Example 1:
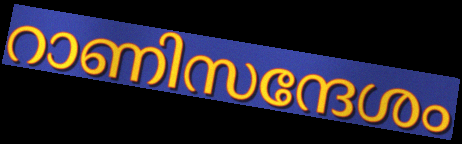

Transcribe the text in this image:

റാണിസന്ദേശം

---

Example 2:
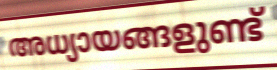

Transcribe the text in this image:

അധ്യായങ്ങളുണ്ട്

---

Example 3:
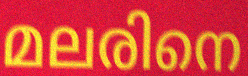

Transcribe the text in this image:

മലരിനെ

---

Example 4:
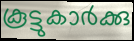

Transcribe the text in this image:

കൂട്ടുകാർക്കു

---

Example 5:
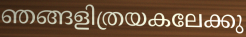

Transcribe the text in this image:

ഞങ്ങളിത്രയകലേക്കു